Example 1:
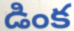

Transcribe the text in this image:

డింక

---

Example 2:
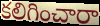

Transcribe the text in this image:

కలిగించారా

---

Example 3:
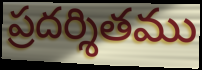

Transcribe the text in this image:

ప్రదర్శితము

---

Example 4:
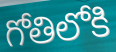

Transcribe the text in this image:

గోతిలోకి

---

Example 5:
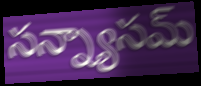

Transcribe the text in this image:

సన్న్యాసమ్